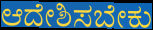
ಆದೇಶಿಸಬೇಕು